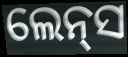
ଲେନ୍‌ସ